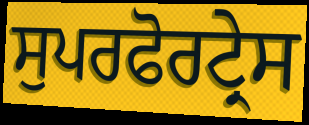
ਸੁਪਰਫੋਰਟ੍ਰੇਸ